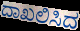
ದಾಖಲಿಸಿದ